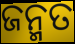
ଜନ୍ମତ